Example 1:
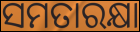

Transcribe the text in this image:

ସମତାରକ୍ଷା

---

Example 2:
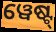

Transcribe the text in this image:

ୱେଷ୍ଟ୍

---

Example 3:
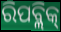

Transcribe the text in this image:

ରିପବ୍ଲିକ୍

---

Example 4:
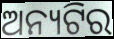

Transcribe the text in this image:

ଅନ୍ୟଟିର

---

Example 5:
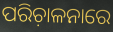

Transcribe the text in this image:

ପରିଚ଼ାଳନାରେ